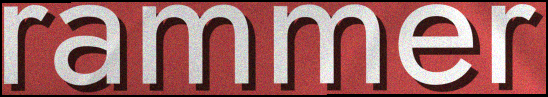
rammer